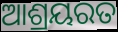
ଆଶ୍ରୟରତ